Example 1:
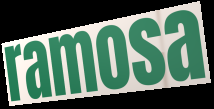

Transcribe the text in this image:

ramosa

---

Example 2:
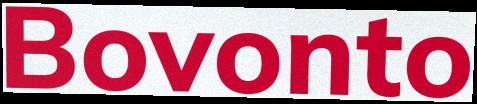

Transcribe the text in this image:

Bovonto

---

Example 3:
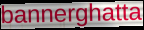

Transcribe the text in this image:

bannerghatta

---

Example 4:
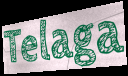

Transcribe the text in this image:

Telaga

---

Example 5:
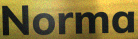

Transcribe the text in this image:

Norma